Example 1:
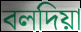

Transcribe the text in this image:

বলদিয়া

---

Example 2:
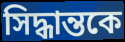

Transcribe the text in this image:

সিদ্ধান্তকে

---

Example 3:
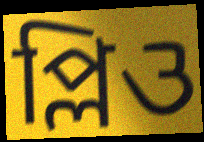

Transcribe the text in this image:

প্লিও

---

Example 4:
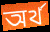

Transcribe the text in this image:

অর্থ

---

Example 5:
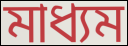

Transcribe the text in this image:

মাধ্যম